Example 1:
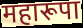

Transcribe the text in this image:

महारूपा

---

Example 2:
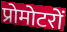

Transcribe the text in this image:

प्रोमोटरों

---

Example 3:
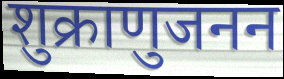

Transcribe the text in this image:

शुक्राणुजनन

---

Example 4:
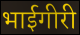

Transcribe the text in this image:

भाईगीरी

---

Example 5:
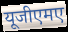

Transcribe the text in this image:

यूजीएमए